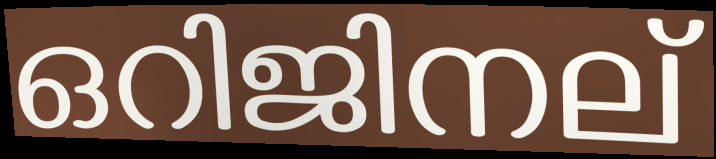
ഒറിജിനല്